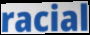
racial